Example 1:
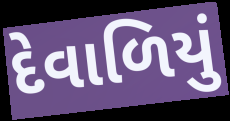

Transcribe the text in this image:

દેવાળિયું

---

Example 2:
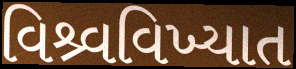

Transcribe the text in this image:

વિશ્ર્વવિખ્યાત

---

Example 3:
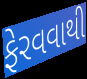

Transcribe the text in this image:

ફેરવવાથી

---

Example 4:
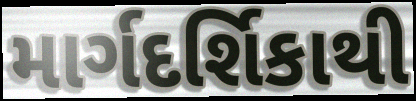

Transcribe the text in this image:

માર્ગદર્શિકાથી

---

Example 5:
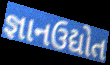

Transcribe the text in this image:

જ્ઞાનઉદ્યોત